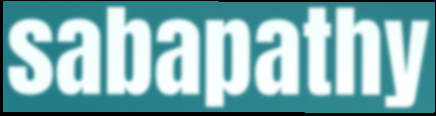
sabapathy